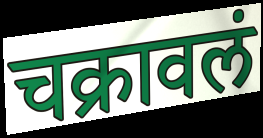
चक्रावलं